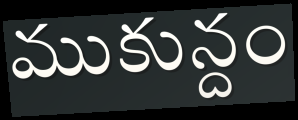
ముకున్దం